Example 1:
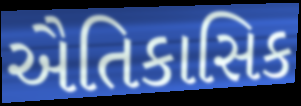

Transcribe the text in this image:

ઐતિકાસિક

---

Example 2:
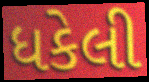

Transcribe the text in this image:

ધકેલી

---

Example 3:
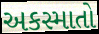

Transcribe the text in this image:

અકસ્માતો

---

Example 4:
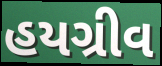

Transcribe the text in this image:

હયગ્રીવ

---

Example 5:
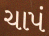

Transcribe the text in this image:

ચાપં